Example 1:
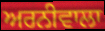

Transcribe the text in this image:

ਅਰਨੀਵਾਲਾ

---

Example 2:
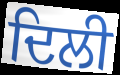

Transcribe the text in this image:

ਦਿਲੀ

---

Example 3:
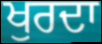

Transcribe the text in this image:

ਖੁਰਦਾ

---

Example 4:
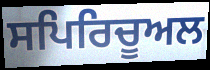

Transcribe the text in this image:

ਸਪਿਰਿਚੂਅਲ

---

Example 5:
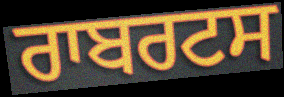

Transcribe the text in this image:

ਰਾਬਰਟਸ